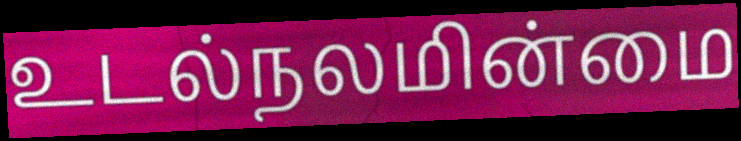
உடல்நலமின்மை